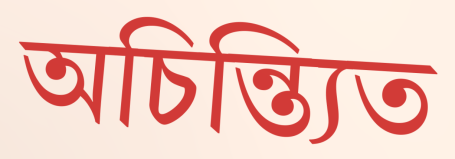
অচিন্ত্যিত